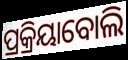
ପ୍ରକ୍ରିୟାବୋଲି